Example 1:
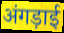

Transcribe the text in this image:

अंगड़ाई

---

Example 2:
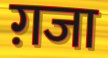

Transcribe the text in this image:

ग़जा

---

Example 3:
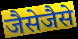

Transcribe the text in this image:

जैसेजैसे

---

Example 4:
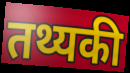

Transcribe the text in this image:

तथ्यकी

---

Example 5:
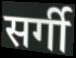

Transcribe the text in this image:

सर्गी